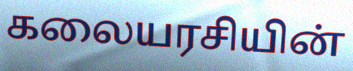
கலையரசியின்